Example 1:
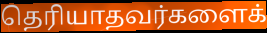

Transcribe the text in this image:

தெரியாதவர்களைக்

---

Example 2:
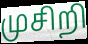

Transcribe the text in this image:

முசிறி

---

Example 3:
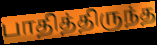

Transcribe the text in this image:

பாதித்திருந்த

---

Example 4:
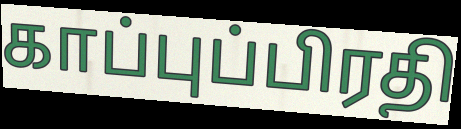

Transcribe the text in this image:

காப்புப்பிரதி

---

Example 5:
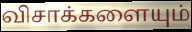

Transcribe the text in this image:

விசாக்களையும்